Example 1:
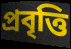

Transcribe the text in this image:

প্রবৃত্তি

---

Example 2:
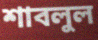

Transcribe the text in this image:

শাবলুল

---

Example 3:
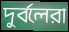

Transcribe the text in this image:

দুর্বলেরা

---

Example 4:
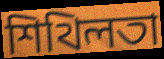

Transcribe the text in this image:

শিথিলতা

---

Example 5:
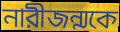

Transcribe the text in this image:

নারীজন্মকে